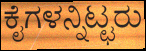
ಕೈಗಳನ್ನಿಟ್ಟರು